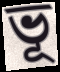
ভূ